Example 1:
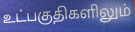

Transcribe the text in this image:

உட்பகுதிகளிலும்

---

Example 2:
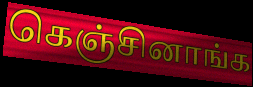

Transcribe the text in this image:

கெஞ்சினாங்க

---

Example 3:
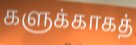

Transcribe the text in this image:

களுக்காகத்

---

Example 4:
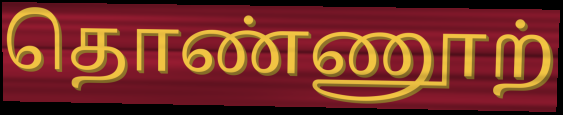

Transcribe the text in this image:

தொண்ணூற்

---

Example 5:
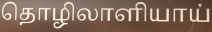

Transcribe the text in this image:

தொழிலாளியாய்